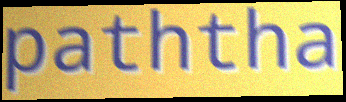
paththa